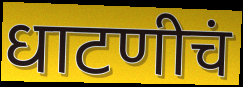
धाटणीचं